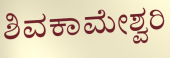
ಶಿವಕಾಮೇಶ್ವರಿ